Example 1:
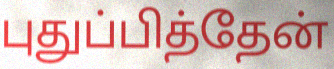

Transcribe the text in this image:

புதுப்பித்தேன்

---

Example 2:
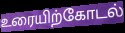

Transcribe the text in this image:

உரையிற்கோடல்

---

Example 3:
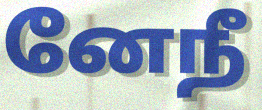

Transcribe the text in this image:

னேநீ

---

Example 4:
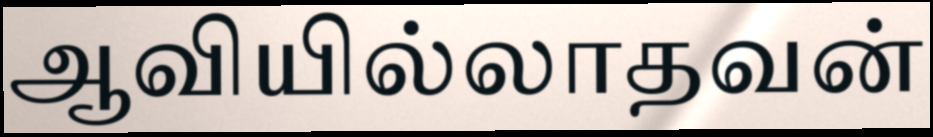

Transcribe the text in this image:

ஆவியில்லாதவன்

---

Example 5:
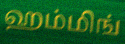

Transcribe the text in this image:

ஹம்மிங்